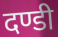
दण्डी